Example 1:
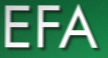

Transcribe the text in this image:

EFA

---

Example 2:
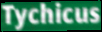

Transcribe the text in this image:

Tychicus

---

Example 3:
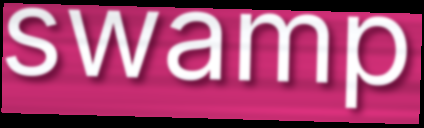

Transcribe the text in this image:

swamp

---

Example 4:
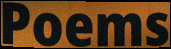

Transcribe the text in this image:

Poems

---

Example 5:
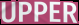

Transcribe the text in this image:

UPPER